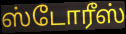
ஸ்டோரீஸ்